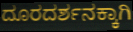
ದೂರದರ್ಶನಕ್ಕಾಗಿ